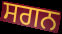
ਸਗਨ